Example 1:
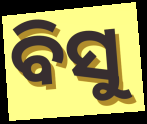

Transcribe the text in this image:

ବିସୁ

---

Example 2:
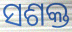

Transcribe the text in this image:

ସଶକ୍ତ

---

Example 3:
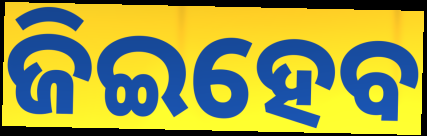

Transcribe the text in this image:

ଜିଇହେବ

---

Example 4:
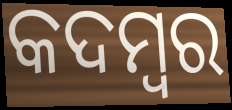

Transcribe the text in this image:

କଦମ୍ବର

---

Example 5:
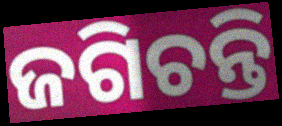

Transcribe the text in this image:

ଜଗିଚନ୍ତି